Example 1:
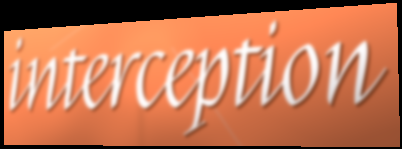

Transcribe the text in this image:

interception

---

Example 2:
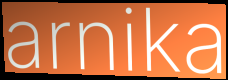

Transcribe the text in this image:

arnika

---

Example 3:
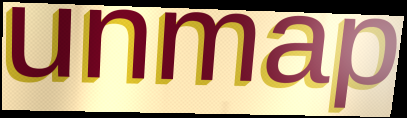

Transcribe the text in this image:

unmap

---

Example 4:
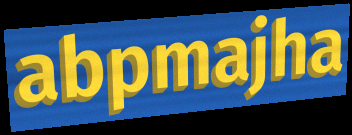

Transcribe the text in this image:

abpmajha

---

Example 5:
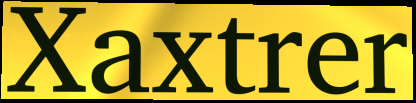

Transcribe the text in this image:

Xaxtrer